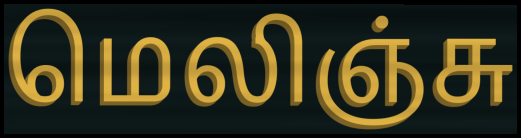
மெலிஞ்சு